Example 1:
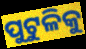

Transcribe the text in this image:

ପୁଟୁଳିକୁ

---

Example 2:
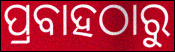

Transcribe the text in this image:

ପ୍ରବାହଠାରୁ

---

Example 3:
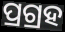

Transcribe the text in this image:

ପ୍ରଗ୍ରହ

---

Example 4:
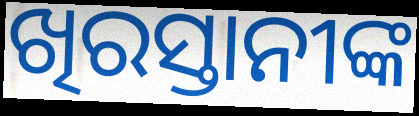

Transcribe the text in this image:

ଖିରସ୍ତାନୀଙ୍କ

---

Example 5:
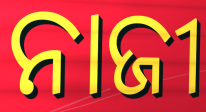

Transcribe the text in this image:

ନାଜୀ